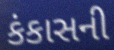
કંકાસની